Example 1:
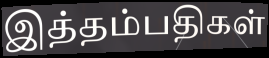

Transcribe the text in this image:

இத்தம்பதிகள்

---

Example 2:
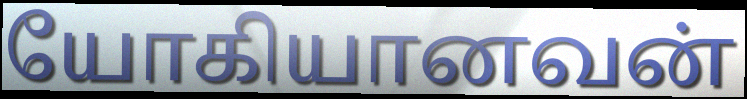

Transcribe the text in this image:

யோகியானவன்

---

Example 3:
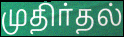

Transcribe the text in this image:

முதிர்தல்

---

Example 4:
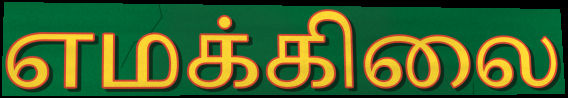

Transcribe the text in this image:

எமக்கிலை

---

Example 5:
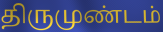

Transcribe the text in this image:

திருமுண்டம்